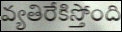
వ్యతిరేకిస్తోంది